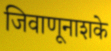
जिवाणूनाशके